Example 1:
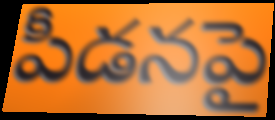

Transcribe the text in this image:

పీడనపై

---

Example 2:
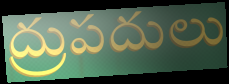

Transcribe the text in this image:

ద్రుపదులు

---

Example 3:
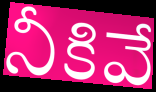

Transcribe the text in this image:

నీకివే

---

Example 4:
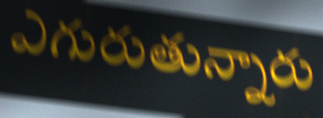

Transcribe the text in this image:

ఎగురుతున్నారు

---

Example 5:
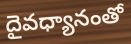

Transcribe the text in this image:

దైవధ్యానంతో